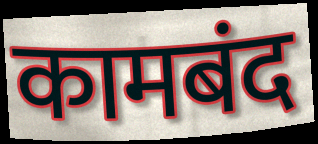
कामबंद